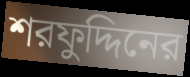
শরফুদ্দিনের